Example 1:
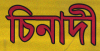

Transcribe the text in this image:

চিনাদী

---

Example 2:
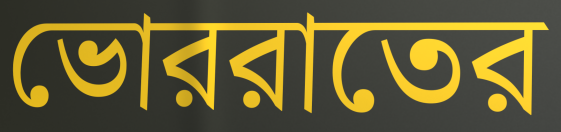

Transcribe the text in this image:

ভোররাতের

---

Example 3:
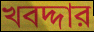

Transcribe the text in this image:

খবদ্দার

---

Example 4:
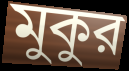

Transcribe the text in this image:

মুকুর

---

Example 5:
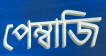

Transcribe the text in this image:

পেম্বাজি